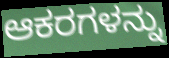
ಆಕರಗಳನ್ನು